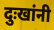
दुःखांनी